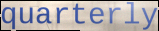
quarterly